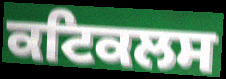
ਕਟਿਕਲਸ